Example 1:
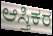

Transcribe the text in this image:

ಆಸ್ತಿಕರ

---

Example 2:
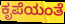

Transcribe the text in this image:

ಕೃಪೆಯಂತೆ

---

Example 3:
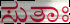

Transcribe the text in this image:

ಸುತಾಃ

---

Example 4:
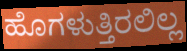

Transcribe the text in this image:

ಹೊಗಳುತ್ತಿರಲಿಲ್ಲ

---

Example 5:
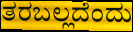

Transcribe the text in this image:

ತರಬಲ್ಲದೆಂದು